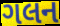
ગલન